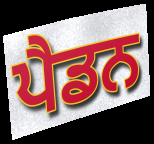
ਪੈਡਨ